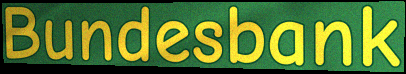
Bundesbank